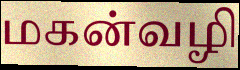
மகன்வழி